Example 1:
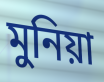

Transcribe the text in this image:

মুনিয়া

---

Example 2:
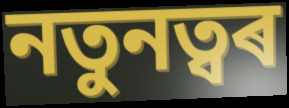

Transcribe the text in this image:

নতুনত্বৰ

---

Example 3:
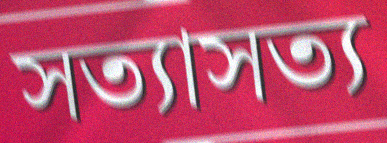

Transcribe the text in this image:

সত্যাসত্য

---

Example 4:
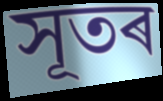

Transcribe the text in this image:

সূতৰ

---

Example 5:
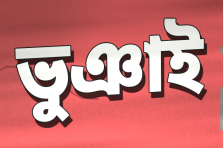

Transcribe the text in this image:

ভুঞাই